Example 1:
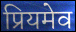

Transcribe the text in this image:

प्रियमेव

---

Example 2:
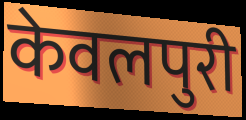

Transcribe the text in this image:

केवलपुरी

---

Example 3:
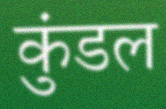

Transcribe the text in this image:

कुंडल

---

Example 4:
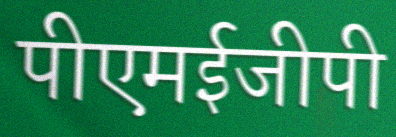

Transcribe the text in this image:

पीएमईजीपी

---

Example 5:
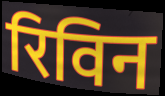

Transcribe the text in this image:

रिविन